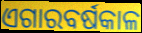
ଏଗାରବର୍ଷକାଳ